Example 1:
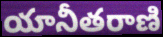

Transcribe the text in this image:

యానీతరాణి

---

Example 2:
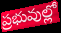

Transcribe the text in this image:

ప్రభువుల్లో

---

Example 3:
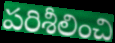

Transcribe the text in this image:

పరిశీలించి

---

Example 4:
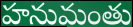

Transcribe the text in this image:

హనుమంతు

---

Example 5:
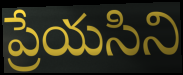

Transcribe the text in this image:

ప్రేయసిని